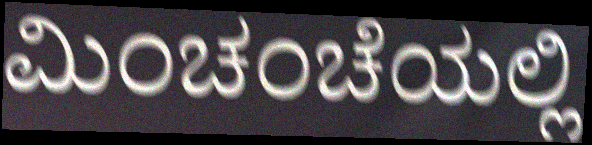
ಮಿಂಚಂಚೆಯಲ್ಲಿ